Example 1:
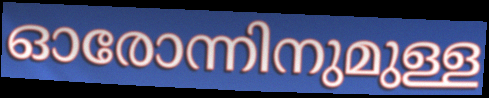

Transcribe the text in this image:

ഓരോന്നിനുമുള്ള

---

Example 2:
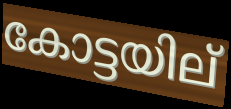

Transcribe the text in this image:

കോട്ടയില്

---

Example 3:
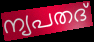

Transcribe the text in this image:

ന്യപതദ്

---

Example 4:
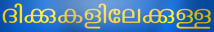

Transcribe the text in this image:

ദിക്കുകളിലേക്കുള്ള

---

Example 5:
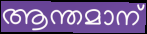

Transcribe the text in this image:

ആന്തമാന്